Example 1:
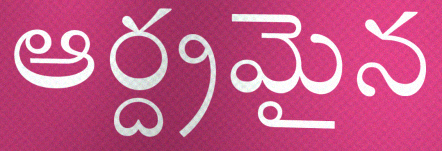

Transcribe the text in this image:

ఆర్ద్రమైన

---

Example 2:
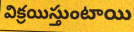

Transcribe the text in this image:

విక్రయిస్తుంటాయి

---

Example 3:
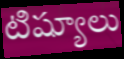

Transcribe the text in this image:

టిష్యూలు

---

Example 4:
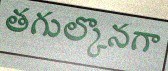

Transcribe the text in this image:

తగుల్కొనగా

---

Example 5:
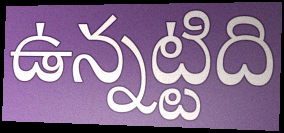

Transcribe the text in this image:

ఉన్నట్టిది